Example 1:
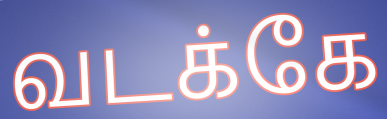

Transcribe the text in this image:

வடக்கே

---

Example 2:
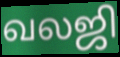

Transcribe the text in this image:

வலஜி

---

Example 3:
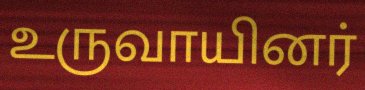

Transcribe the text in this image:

உருவாயினர்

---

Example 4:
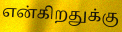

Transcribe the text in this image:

என்கிறதுக்கு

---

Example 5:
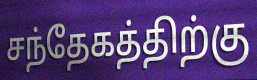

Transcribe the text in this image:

சந்தேகத்திற்கு